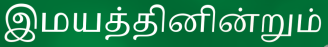
இமயத்தினின்றும்